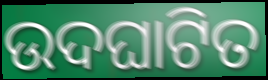
ଉଦଘାଟିତ